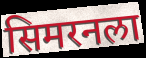
सिमरनला